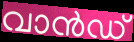
വാൻഡ്